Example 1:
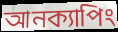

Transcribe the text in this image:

আনক্যাপিং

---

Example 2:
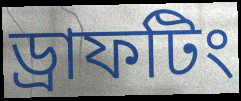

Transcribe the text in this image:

ড্রাফটিং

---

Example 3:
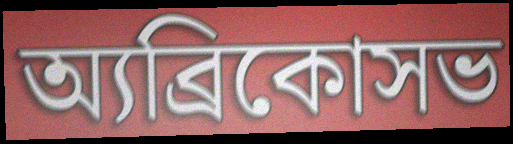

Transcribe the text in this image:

অ্যব্রিকোসভ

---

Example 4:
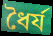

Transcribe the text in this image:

ধৈর্য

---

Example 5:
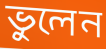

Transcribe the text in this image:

ভুলেন